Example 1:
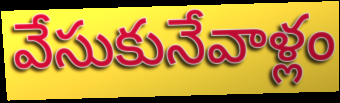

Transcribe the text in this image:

వేసుకునేవాళ్లం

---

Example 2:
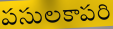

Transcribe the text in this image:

పసులకాపరి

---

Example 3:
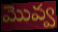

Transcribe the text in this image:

మొవ్వ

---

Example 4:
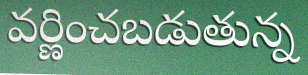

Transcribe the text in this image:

వర్ణించబడుతున్న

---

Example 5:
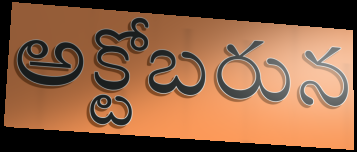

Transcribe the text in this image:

అక్టోబరున